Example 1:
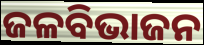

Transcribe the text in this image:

ଜଳବିଭାଜନ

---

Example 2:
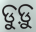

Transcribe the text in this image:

ଡୁଡ଼ୁ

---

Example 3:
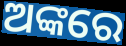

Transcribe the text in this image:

ଅଙ୍କରେ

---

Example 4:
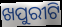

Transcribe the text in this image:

ଖପୁରୀଟି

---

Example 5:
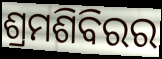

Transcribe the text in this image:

ଶ୍ରମଶିବିରର